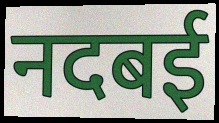
नदबई